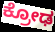
ಕ್ರೋಢ